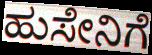
ಹುಸೇನಿಗೆ